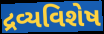
દ્રવ્યવિશેષ